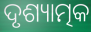
ଦୃଶ୍ୟାତ୍ମକ